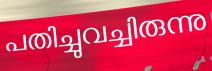
പതിച്ചുവച്ചിരുന്നു